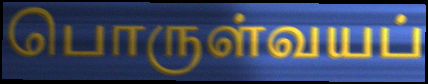
பொருள்வயப்